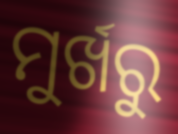
ମୁର୍ଖରୁ